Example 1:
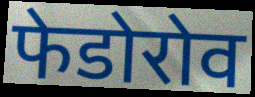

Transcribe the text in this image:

फेडोरोव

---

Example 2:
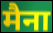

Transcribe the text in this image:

मैना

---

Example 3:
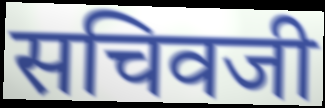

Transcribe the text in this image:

सचिवजी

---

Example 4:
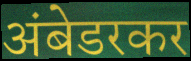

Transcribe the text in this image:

अंबेडरकर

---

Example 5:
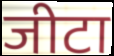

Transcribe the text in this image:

जीटा